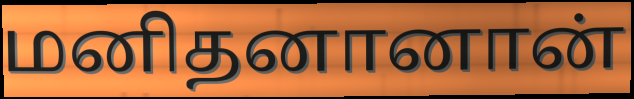
மனிதனானான்